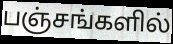
பஞ்சங்களில்